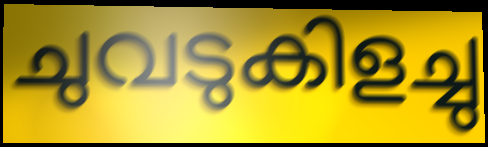
ചുവടുകിളച്ചു